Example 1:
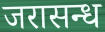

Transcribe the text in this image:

जरासन्ध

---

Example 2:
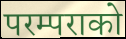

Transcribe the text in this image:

परम्पराको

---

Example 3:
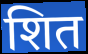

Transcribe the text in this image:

शित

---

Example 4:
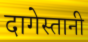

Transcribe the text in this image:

दागेस्तानी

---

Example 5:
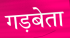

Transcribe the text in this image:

गड़बेता